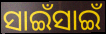
ସାଇଁସାଇଁ